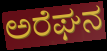
ಅರೆಘನ